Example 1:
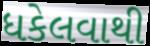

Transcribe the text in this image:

ધકેલવાથી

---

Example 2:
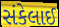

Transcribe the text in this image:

સંકેલાઈ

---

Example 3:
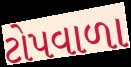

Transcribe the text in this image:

ટોપવાળા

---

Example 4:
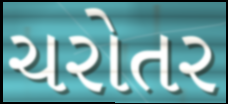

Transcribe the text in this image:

ચરોતર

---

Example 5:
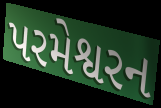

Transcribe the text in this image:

પરમેશ્વરન